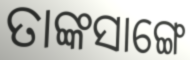
ତାଙ୍କସାଙ୍ଗେ